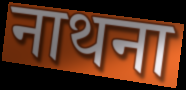
नाथना